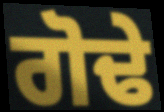
ਗੋਢੇ